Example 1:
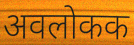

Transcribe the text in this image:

अवलोकक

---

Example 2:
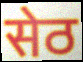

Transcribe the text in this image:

सेठ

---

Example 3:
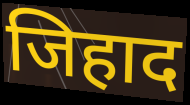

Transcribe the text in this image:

जिहाद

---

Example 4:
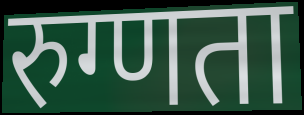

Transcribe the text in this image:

रुग्णता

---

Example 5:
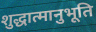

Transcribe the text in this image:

शुद्धात्मानुभूति